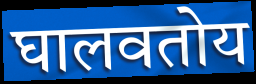
घालवतोय